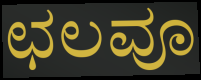
ಛಲವೂ